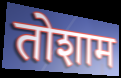
तोशाम